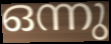
ഒന്നു